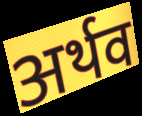
अर्थव